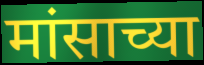
मांसाच्या